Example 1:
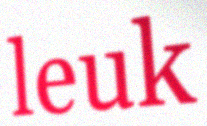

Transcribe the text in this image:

leuk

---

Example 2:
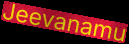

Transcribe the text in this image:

Jeevanamu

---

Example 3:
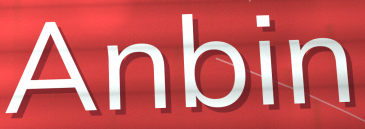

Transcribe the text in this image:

Anbin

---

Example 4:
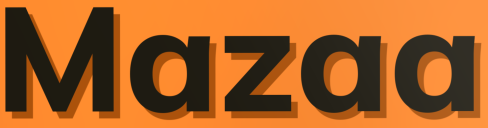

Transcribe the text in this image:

Mazaa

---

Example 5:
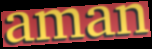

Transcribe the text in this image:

aman